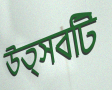
উত্সবটি